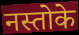
नस्तोके